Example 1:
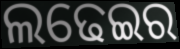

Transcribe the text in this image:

ଲଢେଇର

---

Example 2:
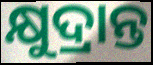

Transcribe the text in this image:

କ୍ଷୁଦ୍ରାନ୍ତ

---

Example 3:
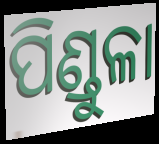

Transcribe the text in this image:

ପିଣ୍ଡୁଳା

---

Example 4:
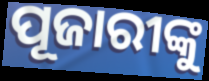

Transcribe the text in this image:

ପୂଜାରୀଙ୍କୁ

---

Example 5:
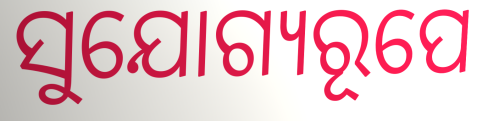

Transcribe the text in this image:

ସୁଯୋଗ୍ୟରୂପେ